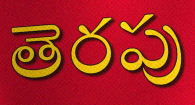
తెరపు